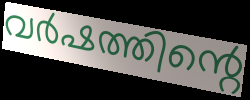
വർഷത്തിന്റെ